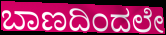
ಬಾಣದಿಂದಲೇ